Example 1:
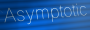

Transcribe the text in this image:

Asymptotic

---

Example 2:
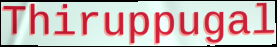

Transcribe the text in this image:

Thiruppugal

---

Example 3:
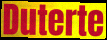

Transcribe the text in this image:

Duterte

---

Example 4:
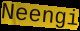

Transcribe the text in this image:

Neengi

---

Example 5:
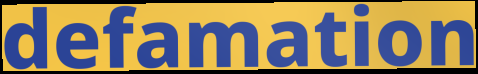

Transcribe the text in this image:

defamation